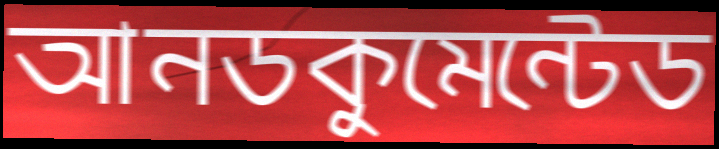
আনডকুমেন্টেড